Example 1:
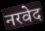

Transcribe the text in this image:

नरवेद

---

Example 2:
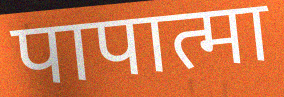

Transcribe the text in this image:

पापात्मा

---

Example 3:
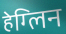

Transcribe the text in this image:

हेग्लिन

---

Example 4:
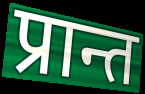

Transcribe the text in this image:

प्रान्त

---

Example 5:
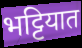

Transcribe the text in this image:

भट्टियात